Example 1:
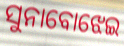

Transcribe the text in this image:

ସୁନାବୋଝେଇ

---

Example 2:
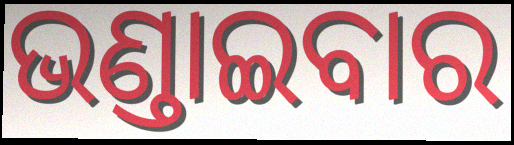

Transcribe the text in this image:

ଭଣ୍ଡାଇବାର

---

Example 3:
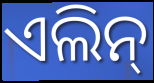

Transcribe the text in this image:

ଏଲିନ୍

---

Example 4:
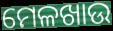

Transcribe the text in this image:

ମେଳଖାଉ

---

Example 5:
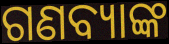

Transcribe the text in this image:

ଗଣବ୍ୟାଙ୍କ